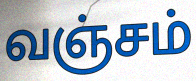
வஞ்சம்